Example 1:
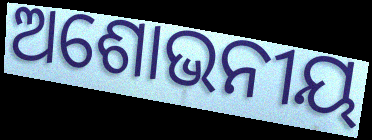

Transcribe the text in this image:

ଅଶୋଭନୀୟ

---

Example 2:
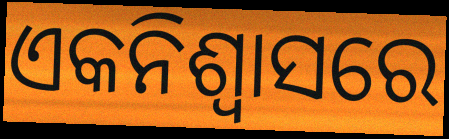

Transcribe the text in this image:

ଏକନିଶ୍ୱାସରେ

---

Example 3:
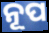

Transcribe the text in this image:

ନୂପ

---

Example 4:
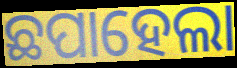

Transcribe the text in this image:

ଛପାହେଲା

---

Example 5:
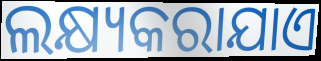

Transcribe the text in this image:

ଲକ୍ଷ୍ୟକରାଯାଏ